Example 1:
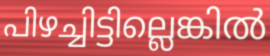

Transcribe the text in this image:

പിഴച്ചിട്ടില്ലെങ്കിൽ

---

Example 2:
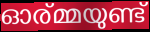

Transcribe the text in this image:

ഓര്മ്മയുണ്ട്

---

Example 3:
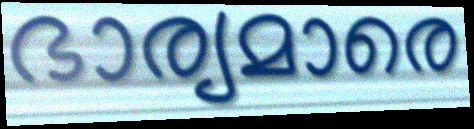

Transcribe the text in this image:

ഭാര്യമാരെ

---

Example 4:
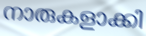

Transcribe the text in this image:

നാരുകളാക്കി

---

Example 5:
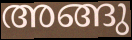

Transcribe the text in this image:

അങ്ങു